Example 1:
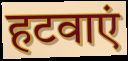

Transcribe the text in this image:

हटवाएं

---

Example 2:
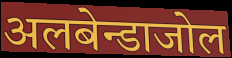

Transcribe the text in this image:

अलबेन्डाजोल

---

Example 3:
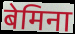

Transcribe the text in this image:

बेमिना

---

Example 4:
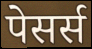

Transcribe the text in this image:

पेसर्स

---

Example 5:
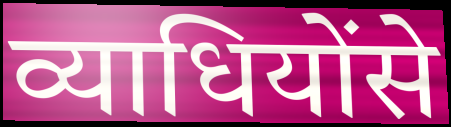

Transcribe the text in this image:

व्याधियोंसे